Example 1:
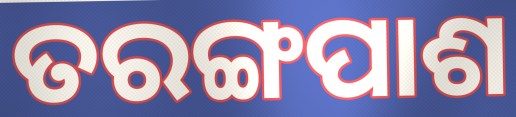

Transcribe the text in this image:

ତରଙ୍ଗପାଶ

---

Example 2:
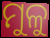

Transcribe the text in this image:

ମୁଳୁ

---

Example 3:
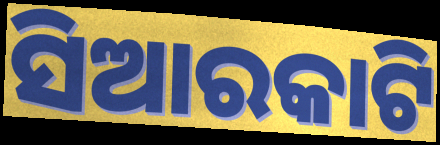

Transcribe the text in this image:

ସିଆରକାଟି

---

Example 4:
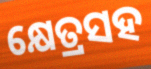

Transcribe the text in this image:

କ୍ଷେତ୍ରସହ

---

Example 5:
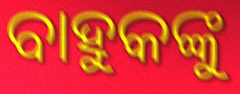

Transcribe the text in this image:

ବାହୁକଙ୍କୁ